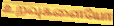
உறவுகளையோ